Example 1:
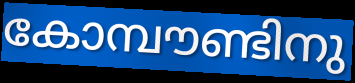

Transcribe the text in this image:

കോമ്പൗണ്ടിനു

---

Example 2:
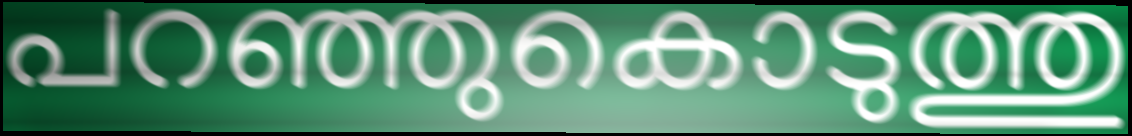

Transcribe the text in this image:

പറഞ്ഞുകൊടുത്തു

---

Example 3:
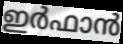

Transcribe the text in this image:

ഇർഫാൻ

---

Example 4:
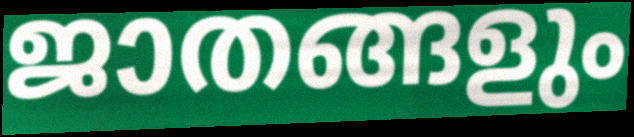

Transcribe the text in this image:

ജാതങ്ങളും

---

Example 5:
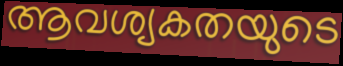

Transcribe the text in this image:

ആവശ്യകതയുടെ